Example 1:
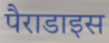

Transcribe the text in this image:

पैराडाइस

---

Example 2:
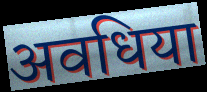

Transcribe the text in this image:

अवधिया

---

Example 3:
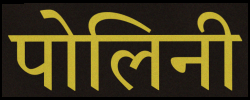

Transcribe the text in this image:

पोलिनी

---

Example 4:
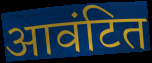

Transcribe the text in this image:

आवंटित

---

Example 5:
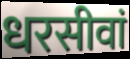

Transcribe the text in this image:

धरसीवां